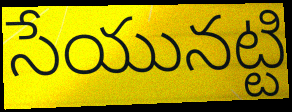
సేయునట్టి